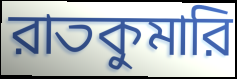
রাতকুমারি